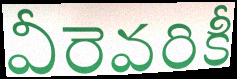
వీరెవరికీ